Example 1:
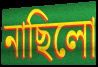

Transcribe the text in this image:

নাছিলো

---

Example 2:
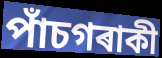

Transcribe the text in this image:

পাঁচগৰাকী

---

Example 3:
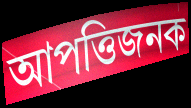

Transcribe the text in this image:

আপত্তিজনক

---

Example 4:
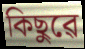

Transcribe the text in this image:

কিছুৱে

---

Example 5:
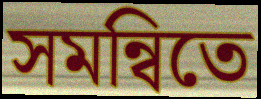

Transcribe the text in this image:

সমন্বিতে